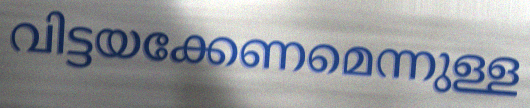
വിട്ടയക്കേണമെന്നുള്ള